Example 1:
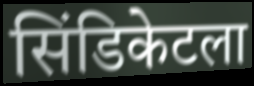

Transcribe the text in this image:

सिंडिकेटला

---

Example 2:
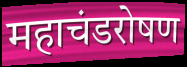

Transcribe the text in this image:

महाचंडरोषण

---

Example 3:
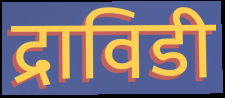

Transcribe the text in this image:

द्राविडी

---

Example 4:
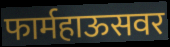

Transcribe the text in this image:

फार्महाऊसवर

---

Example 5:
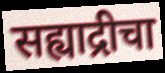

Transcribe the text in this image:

सह्याद्रीचा